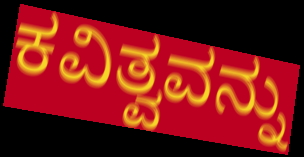
ಕವಿತ್ವವನ್ನು